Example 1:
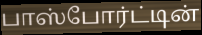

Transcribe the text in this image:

பாஸ்போர்ட்டின்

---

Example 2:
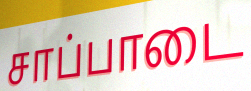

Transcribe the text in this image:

சாப்பாடை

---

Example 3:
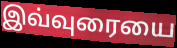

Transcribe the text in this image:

இவ்வுரையை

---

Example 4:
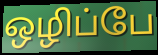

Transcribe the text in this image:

ஒழிப்பே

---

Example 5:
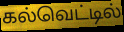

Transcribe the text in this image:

கல்வெட்டில்